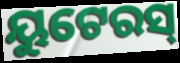
ୟୁଟେରସ୍